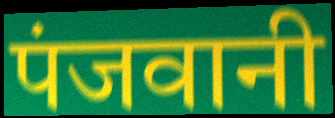
पंजवानी